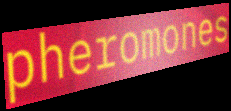
pheromones